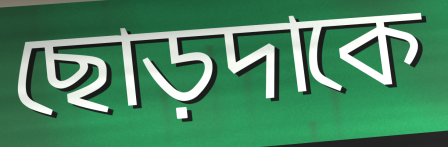
ছোড়দাকে